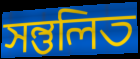
সন্তুলিত